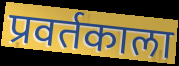
प्रवर्तकाला